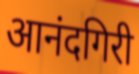
आनंदगिरी